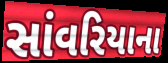
સાંવરિયાના